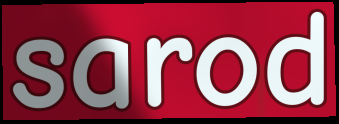
sarod